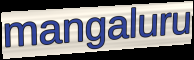
mangaluru